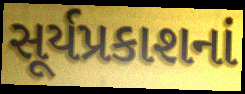
સૂર્યપ્રકાશનાં